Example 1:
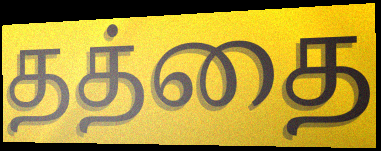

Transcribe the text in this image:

தத்தை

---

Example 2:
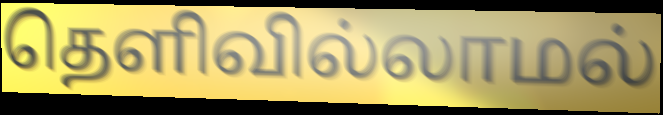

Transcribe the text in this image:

தெளிவில்லாமல்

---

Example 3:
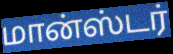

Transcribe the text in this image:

மான்ஸ்டர்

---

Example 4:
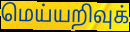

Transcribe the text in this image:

மெய்யறிவுக்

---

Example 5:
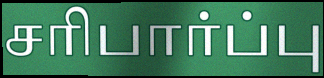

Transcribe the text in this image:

சரிபார்ப்பு